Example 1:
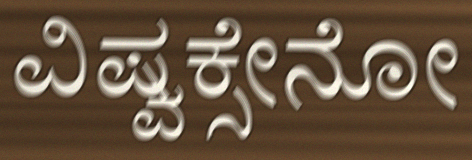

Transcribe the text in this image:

ವಿಷ್ವಕ್ಸೇನೋ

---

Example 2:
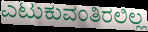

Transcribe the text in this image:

ಎಟುಕುವಂತಿರಲಿಲ್ಲ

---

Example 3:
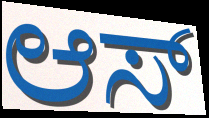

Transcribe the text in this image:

ಆಸ್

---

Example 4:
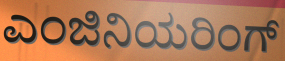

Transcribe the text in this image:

ಎಂಜಿನಿಯರಿಂಗ್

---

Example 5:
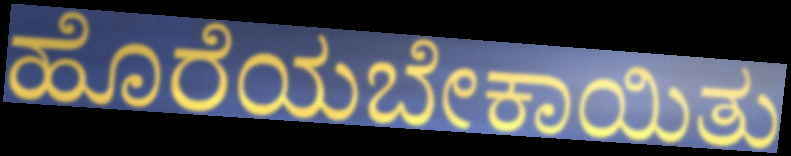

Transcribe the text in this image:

ಹೊರೆಯಬೇಕಾಯಿತು